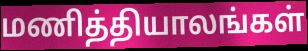
மணித்தியாலங்கள்